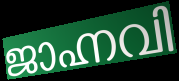
ജാഹ്നവി